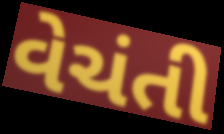
વેચંતી